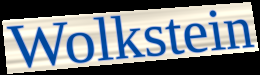
Wolkstein